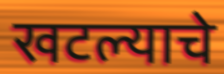
खटल्याचे